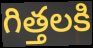
గిత్తలకి